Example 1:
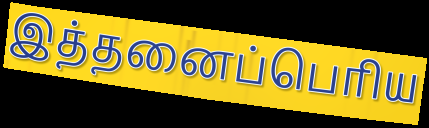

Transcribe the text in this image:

இத்தனைப்பெரிய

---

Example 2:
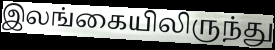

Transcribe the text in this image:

இலங்கையிலிருந்து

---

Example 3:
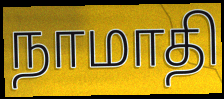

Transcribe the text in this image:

நாமாதி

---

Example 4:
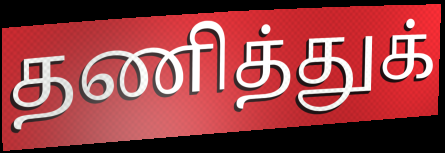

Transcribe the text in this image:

தணித்துக்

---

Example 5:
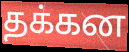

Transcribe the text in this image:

தக்கன